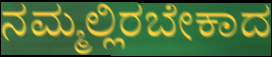
ನಮ್ಮಲ್ಲಿರಬೇಕಾದ